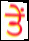
ਤੇੰ